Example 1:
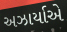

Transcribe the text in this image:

અઝાર્યાએ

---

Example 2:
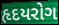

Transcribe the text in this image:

હૃદયરોગ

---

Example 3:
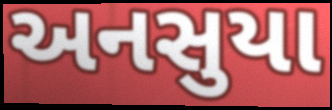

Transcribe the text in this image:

અનસુયા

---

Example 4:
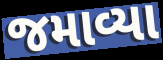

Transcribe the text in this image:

જમાવ્યા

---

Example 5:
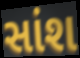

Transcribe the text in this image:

સાંશ